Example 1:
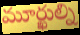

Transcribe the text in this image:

మూర్ఖుల్ని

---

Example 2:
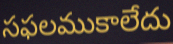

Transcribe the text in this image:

సఫలముకాలేదు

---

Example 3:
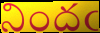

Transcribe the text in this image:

నిందఁ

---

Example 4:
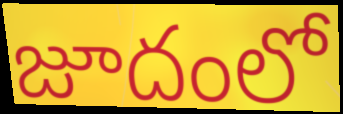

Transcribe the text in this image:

జూదంలో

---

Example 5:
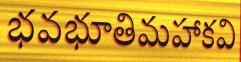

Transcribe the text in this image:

భవభూతిమహాకవి